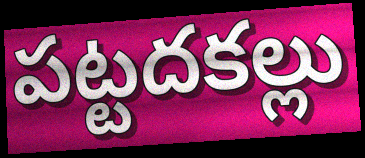
పట్టదకల్లు